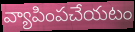
వ్యాపింపచేయటం